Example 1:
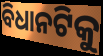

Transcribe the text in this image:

ବିଧାନଟିକୁ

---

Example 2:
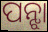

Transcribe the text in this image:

ପନ୍ଝା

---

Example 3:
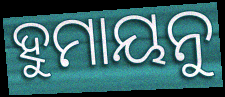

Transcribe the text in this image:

ହୁମାୟନୁ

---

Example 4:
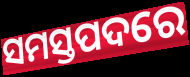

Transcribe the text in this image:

ସମସ୍ତପଦରେ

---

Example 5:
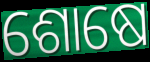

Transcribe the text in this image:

ଶୋଷେ